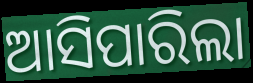
ଆସିପାରିଲା